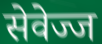
सेवेज्ज